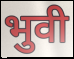
भुवी